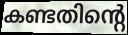
കണ്ടതിന്റെ